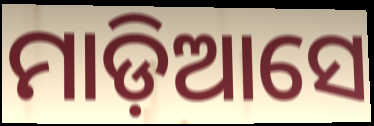
ମାଡ଼ିଆସେ